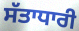
ਸੱਤਾਧਾਰੀ